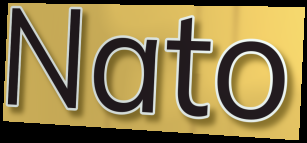
Nato